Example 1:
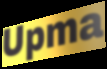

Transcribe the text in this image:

Upma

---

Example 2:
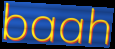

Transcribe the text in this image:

baah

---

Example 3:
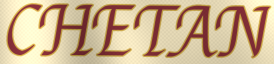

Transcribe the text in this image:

CHETAN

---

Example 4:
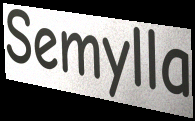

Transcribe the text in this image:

Semylla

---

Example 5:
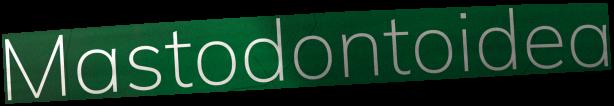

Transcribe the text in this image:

Mastodontoidea